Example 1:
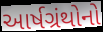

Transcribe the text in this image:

આર્ષગ્રંથોનો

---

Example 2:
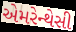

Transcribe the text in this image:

એમરેન્થેસી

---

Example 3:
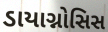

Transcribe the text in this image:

ડાયાગ્નોસિસ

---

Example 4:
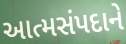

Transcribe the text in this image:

આત્મસંપદાને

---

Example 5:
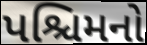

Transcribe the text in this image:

પશ્ચિમનો